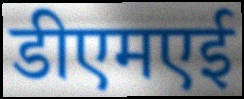
डीएमएई